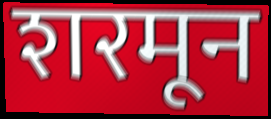
शरमून